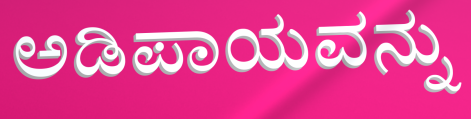
ಅಡಿಪಾಯವನ್ನು